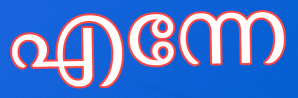
എന്നേ